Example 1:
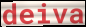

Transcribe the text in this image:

deiva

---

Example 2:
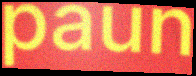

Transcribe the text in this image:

paun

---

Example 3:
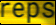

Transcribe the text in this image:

reps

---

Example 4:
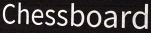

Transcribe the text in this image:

Chessboard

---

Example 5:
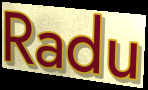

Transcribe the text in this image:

Radu